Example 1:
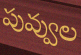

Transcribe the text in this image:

పువ్వుల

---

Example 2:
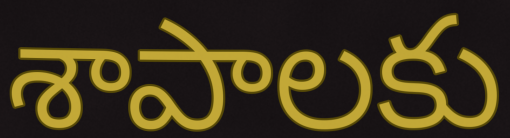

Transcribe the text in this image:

శాపాలకు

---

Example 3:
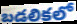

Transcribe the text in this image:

బడలికలో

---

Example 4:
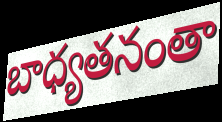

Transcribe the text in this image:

బాధ్యతనంతా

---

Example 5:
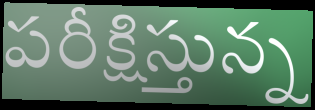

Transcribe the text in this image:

పరీక్షిస్తున్న